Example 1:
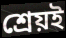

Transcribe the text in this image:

শ্রেয়ই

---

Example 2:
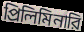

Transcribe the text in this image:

প্রিলিমিনারি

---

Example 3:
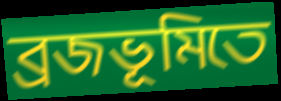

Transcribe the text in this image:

ব্রজভূমিতে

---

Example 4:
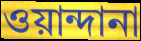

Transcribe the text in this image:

ওয়ান্দানা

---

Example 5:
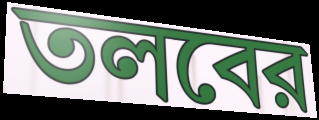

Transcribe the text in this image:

তলবের